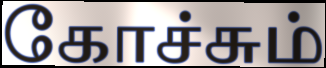
கோச்சும்